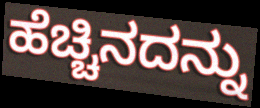
ಹೆಚ್ಚಿನದನ್ನು